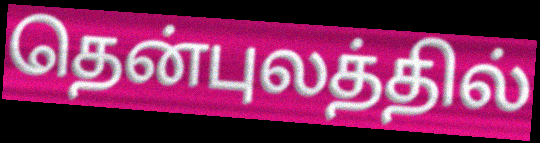
தென்புலத்தில்